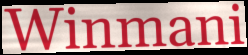
Winmani